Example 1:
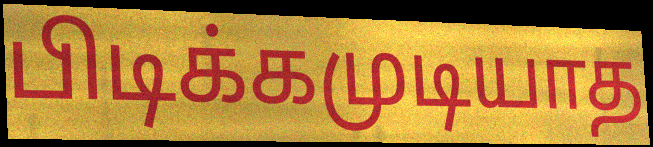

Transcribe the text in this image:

பிடிக்கமுடியாத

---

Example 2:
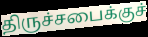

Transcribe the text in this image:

திருச்சபைக்குச்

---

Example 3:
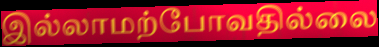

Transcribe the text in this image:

இல்லாமற்போவதில்லை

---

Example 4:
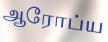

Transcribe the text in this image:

ஆரோப்ய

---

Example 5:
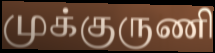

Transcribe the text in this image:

முக்குருணி